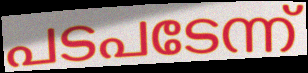
പടപടേന്ന്